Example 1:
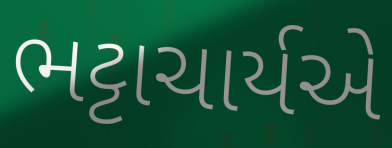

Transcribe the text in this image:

ભટ્ટાચાર્યએ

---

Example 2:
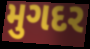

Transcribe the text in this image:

મુગદર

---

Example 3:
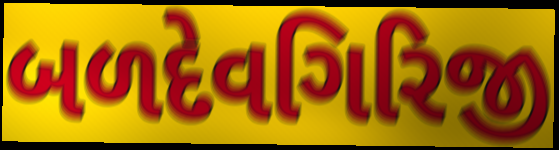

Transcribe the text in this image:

બળદેવગિરિજી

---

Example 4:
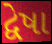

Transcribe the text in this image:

દ્વેષા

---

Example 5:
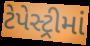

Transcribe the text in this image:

ટેપેસ્ટ્રીમાં